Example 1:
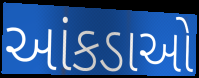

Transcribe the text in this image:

આંકડાઓ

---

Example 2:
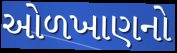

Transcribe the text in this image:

ઓળખાણનો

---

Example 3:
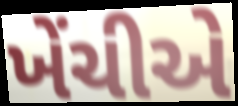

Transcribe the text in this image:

ખેંચીએ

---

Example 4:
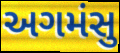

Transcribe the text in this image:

અગમંસુ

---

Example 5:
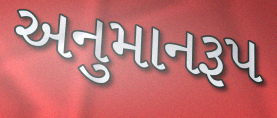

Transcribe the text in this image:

અનુમાનરૂપ